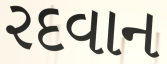
રદવાન